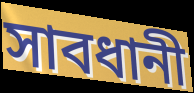
সাবধানী